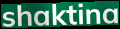
shaktina